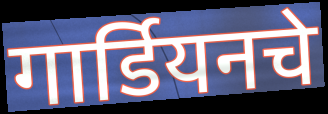
गार्डियनचे